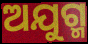
ଅଯୁଗ୍ମ